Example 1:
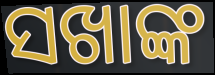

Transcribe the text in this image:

ସଖାଙ୍କ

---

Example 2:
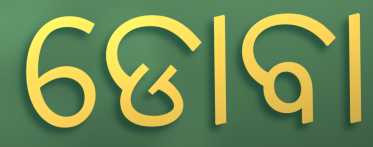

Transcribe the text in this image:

ଡୋବା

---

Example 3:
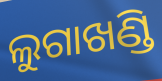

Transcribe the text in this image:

ଲୁଗାଖଣ୍ଡି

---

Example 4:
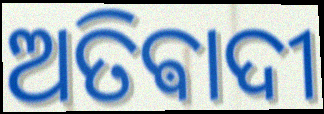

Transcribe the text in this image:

ଅତିଵାଦୀ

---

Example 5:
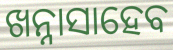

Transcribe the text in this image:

ଖନ୍ନାସାହେବ